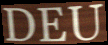
DEU